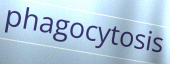
phagocytosis